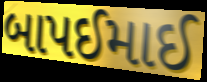
બાપઈમાઈ